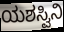
ಯಶಸ್ವಿನಿ